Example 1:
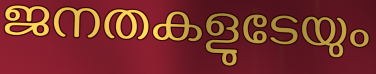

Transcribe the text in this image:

ജനതകളുടേയും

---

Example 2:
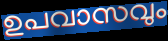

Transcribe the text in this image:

ഉപവാസവും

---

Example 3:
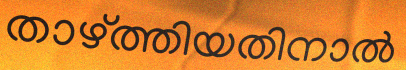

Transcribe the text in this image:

താഴ്ത്തിയതിനാൽ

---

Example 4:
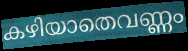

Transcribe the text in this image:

കഴിയാതെവണ്ണം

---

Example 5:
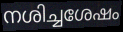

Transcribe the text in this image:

നശിച്ചശേഷം